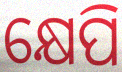
କ୍ଷେପି